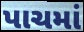
પાચમાં